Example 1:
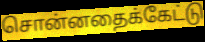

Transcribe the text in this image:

சொன்னதைக்கேட்டு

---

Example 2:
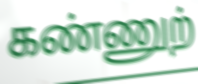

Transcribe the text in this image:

கண்ணுற்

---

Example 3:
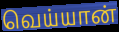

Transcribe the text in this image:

வெய்யான்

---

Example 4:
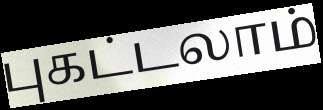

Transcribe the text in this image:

புகட்டலாம்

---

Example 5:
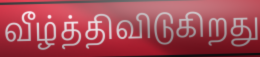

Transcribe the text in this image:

வீழ்த்திவிடுகிறது